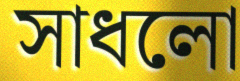
সাধলো